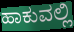
ಹಾಕುವಲ್ಲಿ